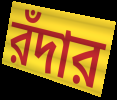
রঁদার